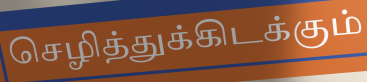
செழித்துக்கிடக்கும்